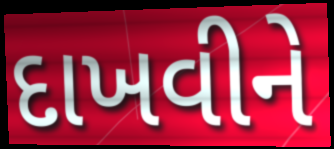
દાખવીને